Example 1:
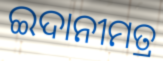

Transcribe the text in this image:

ଇଦାନୀମତ୍ର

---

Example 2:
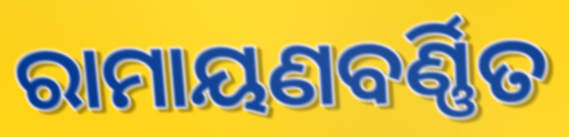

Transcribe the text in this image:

ରାମାୟଣବର୍ଣ୍ଣିତ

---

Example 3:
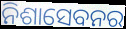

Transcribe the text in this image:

ନିଶାସେବନର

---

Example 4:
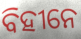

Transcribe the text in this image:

ବିହୀନେ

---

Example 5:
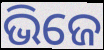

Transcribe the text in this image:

ଭିଜେ